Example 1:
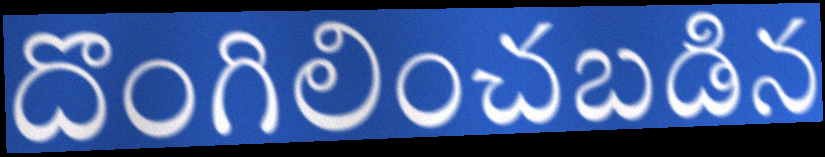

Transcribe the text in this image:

దొంగిలించబడిన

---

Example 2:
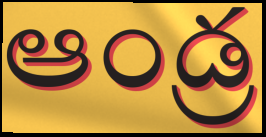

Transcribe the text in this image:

ఆండ్ర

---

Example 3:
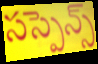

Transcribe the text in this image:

సస్పెన్స్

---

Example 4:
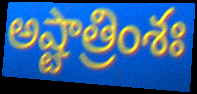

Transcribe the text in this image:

అష్టాత్రింశః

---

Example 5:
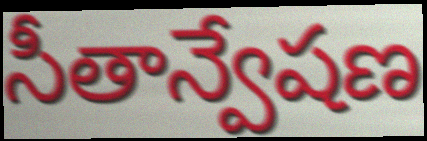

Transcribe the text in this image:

సీతాన్వేషణ